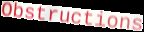
Obstructions